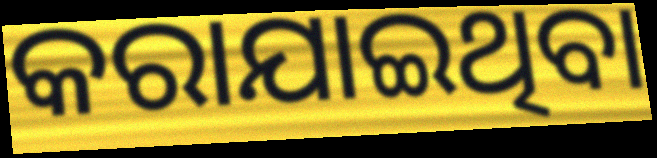
କରାଯାଇଥିବା